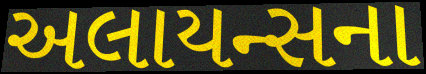
અલાયન્સના